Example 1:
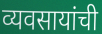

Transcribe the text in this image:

व्यवसायांची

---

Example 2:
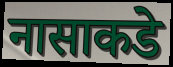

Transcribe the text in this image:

नासाकडे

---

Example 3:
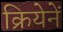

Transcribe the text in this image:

क्रियेनें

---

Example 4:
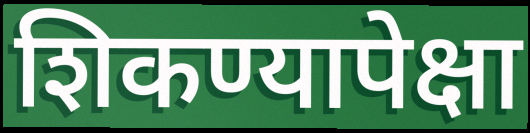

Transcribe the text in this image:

शिकण्यापेक्षा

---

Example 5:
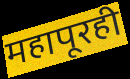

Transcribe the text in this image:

महापूरही